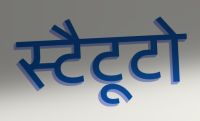
स्टैटूटो